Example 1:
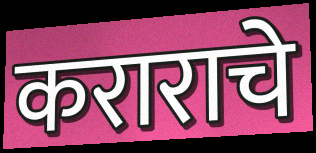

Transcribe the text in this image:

कराराचे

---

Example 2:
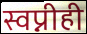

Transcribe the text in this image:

स्वप्नीही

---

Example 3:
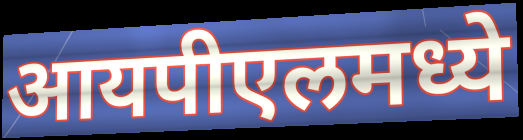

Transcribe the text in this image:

आयपीएलमध्ये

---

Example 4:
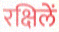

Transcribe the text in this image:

रक्षिलें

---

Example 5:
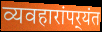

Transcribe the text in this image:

व्यवहारांपर्यंत